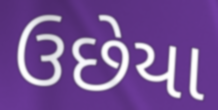
ઉછેયા